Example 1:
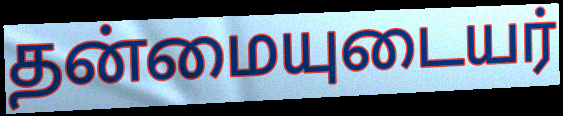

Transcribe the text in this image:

தன்மையுடையர்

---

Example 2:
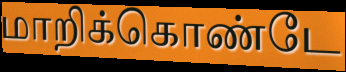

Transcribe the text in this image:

மாறிக்கொண்டே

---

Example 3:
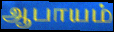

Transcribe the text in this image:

ஆபாயம்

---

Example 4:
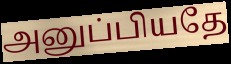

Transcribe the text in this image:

அனுப்பியதே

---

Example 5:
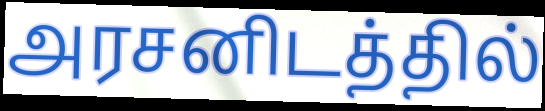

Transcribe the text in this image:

அரசனிடத்தில்